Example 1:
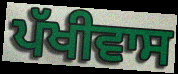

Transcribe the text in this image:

ਪੱਖੀਵਾਸ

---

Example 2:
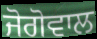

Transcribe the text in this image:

ਜੋਗੋਵਾਲ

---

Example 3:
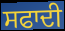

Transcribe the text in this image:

ਸਫਾਦੀ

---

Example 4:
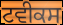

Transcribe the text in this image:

ਟਵੀਕਸ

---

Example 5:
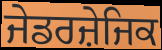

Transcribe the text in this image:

ਜੇਡਰਜ਼ੇਜਿਕ